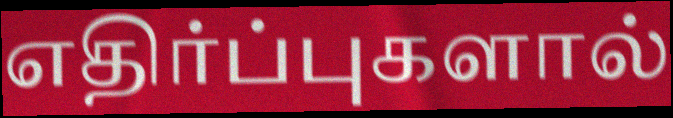
எதிர்ப்புகளால்